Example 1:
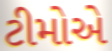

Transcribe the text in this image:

ટીમોએ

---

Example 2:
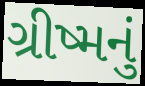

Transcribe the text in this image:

ગ્રીષ્મનું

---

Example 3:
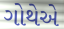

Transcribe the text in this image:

ગોથેએ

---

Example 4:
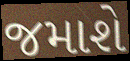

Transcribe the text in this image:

જમાશે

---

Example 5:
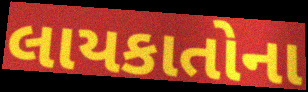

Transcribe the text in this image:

લાયકાતોના